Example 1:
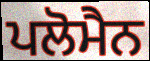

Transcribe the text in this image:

ਪਲੋਮੈਨ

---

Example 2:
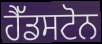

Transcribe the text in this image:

ਹੈੱਡਸਟੋਨ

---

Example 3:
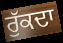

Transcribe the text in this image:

ਰੁੱਕਦਾ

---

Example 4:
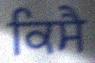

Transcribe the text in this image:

ਕਿਸੈ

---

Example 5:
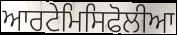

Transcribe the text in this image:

ਆਰਟੇਮਿਸਿਫੋਲੀਆ